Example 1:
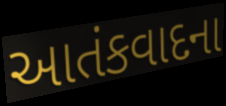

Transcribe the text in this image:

આતંકવાદના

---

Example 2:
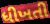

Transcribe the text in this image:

ધીખતી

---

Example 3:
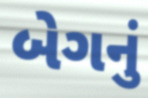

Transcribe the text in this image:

બેગનું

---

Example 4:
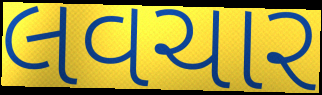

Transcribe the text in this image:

લવચાર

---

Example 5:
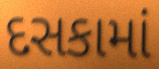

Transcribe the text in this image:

દસકામાં